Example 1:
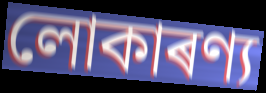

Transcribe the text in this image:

লোকাৰণ্য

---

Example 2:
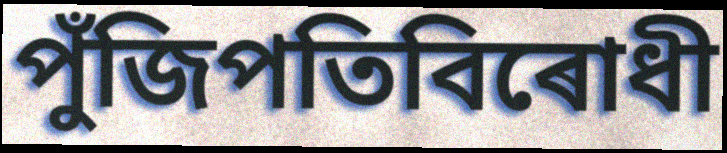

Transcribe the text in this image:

পুঁজিপতিবিৰোধী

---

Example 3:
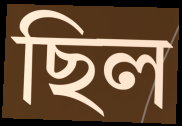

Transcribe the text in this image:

ছিল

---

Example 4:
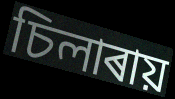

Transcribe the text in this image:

চিলাৰায়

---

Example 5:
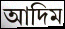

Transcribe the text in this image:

আদিম